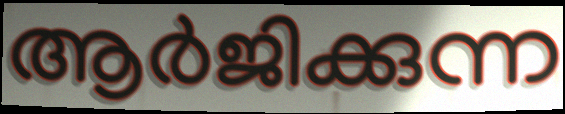
ആർജിക്കുന്ന